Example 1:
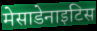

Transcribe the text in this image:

मेसाडेनाइटिस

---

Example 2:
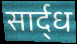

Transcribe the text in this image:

सार्द्ध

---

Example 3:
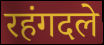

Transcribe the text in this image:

रहंगदले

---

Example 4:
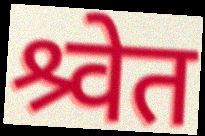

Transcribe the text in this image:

श्र्वेत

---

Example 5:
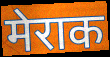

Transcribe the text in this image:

मेराक